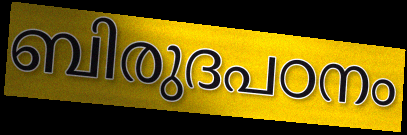
ബിരുദപഠനം